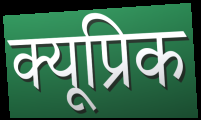
क्यूप्रिक